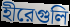
হীরেগুলি